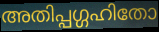
അതിപ്പഗ്ഗഹിതോ